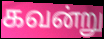
கவன்று